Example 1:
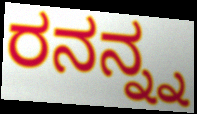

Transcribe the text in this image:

ರನನ್ನ್ನ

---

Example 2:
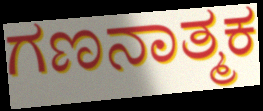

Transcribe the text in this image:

ಗಣನಾತ್ಮಕ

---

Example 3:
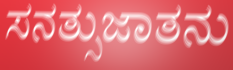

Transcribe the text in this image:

ಸನತ್ಸುಜಾತನು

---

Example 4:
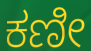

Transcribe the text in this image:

ಕಣೀ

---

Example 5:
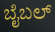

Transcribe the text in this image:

ಬೈಬಲ್